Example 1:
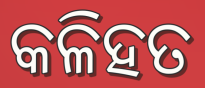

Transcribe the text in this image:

କଳିହତ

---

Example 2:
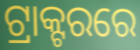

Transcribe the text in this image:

ଟ୍ରାକ୍ଟରରେ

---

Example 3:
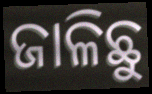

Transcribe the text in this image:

ଜାଳିଛୁ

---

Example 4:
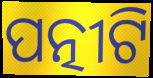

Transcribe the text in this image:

ପତ୍ନୀଟି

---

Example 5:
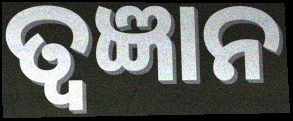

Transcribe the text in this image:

ତ୍ୱଜ୍ଞାନ